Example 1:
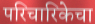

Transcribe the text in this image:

परिचारिकेचा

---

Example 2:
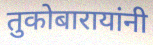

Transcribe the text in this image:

तुकोबारायांनी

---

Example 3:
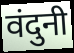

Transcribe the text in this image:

वंदुनी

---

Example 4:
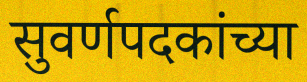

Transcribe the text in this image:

सुवर्णपदकांच्या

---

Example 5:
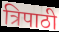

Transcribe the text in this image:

त्रिपाठी